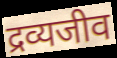
द्रव्यजीव